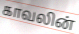
காவலின்